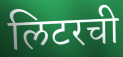
लिटरची